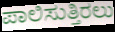
ಪಾಲಿಸುತ್ತಿರಲು